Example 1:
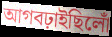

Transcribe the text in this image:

আগবঢ়াইছিলোঁ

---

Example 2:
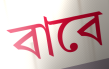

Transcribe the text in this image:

বাবে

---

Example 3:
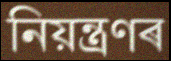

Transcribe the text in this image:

নিয়ন্ত্ৰণৰ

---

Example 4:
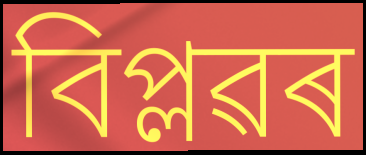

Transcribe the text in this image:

বিপ্লৱৰ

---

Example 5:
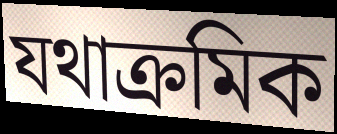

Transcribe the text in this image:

যথাক্ৰমিক